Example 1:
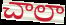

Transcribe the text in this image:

చాలా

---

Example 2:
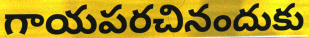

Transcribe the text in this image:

గాయపరచినందుకు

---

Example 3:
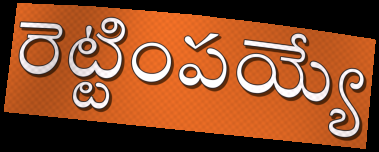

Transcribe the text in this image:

రెట్టింపయ్యే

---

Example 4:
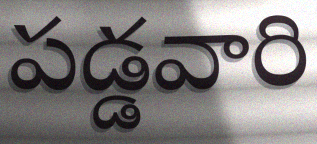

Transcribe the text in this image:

పడ్డవారి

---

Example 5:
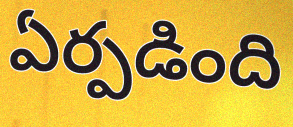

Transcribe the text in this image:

ఏర్పడింది